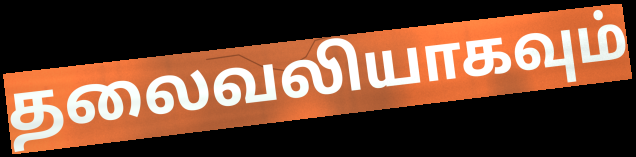
தலைவலியாகவும்